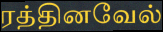
ரத்தினவேல்